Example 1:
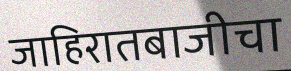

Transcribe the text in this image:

जाहिरातबाजीचा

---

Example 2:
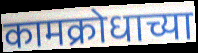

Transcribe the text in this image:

कामक्रोधाच्या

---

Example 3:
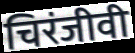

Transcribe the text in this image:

चिरंजीवी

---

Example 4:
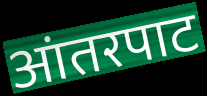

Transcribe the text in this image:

आंतरपाट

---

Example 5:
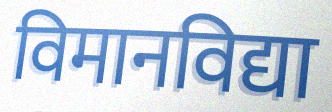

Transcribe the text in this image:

विमानविद्या